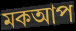
মকআপ